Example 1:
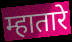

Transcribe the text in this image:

म्हातारे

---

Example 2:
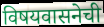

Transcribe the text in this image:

विषयवासनेची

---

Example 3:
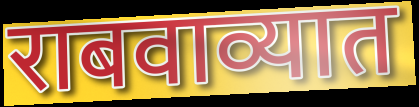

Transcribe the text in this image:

राबवाव्यात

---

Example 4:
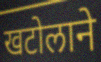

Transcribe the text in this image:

खटोलाने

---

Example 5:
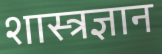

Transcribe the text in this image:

शास्त्रज्ञान